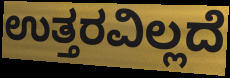
ಉತ್ತರವಿಲ್ಲದೆ